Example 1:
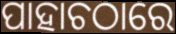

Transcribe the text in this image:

ପାହାଚଠାରେ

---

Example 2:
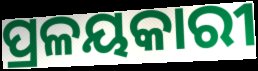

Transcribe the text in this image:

ପ୍ରଳୟକାରୀ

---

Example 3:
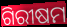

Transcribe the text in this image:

ଗିରୀଷମ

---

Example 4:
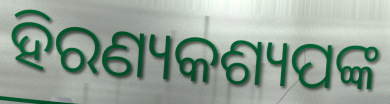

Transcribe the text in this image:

ହିରଣ୍ୟକଶ୍ୟପଙ୍କ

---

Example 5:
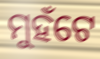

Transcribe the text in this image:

ମୁହଁଟେ